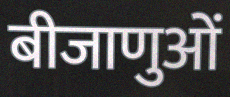
बीजाणुओं